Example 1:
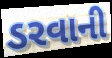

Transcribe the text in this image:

ડરવાની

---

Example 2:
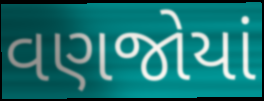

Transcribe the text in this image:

વણજોયાં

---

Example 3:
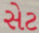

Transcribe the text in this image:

સેટ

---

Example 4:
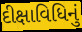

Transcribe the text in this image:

દીક્ષાવિધિનું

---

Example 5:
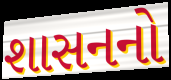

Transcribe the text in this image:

શાસનનો